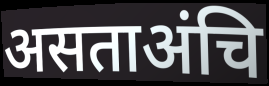
असताअंचि